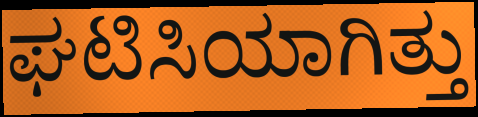
ಘಟಿಸಿಯಾಗಿತ್ತು